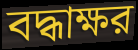
বদ্ধাক্ষর